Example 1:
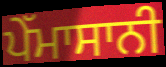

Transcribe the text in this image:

ਪੇੱਮਾਸਾਨੀ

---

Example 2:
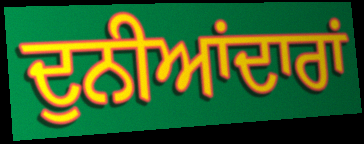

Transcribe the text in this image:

ਦੁਨੀਆਂਦਾਰਾਂ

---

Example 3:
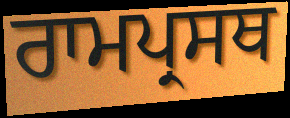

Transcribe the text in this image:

ਰਾਮਪ੍ਰਸਥ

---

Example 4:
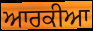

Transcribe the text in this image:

ਆਰਕੀਆ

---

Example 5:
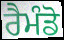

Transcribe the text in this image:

ਰੈਮੰਡੋ